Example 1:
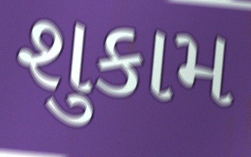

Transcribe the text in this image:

શુકામ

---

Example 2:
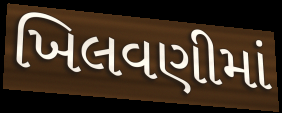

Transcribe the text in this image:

ખિલવણીમાં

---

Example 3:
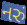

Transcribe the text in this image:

નરું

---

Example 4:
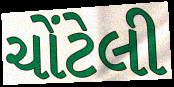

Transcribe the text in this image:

ચોંટેલી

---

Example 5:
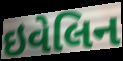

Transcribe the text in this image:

ઇવેલિન